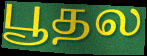
பூதல